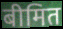
बीमित